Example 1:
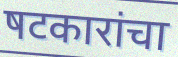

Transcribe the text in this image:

षटकारांचा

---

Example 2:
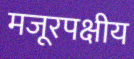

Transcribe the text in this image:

मजूरपक्षीय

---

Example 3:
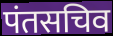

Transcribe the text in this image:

पंतसचिव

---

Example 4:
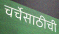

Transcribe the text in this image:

चर्चेसाठीची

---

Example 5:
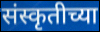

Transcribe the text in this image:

संस्कृतीच्या